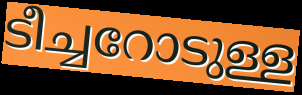
ടീച്ചറോടുള്ള